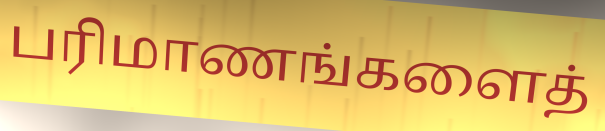
பரிமாணங்களைத்